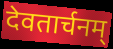
देवतार्चनम्